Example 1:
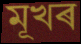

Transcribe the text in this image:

মূখৰ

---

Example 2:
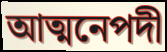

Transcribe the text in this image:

আত্মনেপদী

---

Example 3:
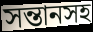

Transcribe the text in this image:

সন্তানসহ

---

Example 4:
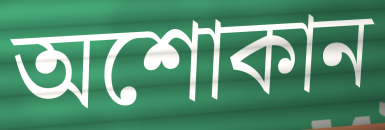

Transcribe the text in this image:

অশোকান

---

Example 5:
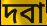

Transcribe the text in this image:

দবা